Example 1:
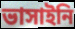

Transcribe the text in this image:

ভাসাইনি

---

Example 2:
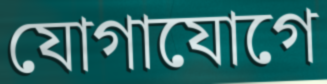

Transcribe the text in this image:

যোগাযোগে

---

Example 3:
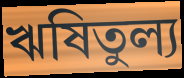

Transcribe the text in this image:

ঋষিতুল্য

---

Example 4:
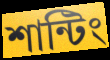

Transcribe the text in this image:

শান্টিং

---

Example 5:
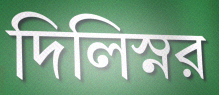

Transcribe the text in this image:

দিলিস্নর